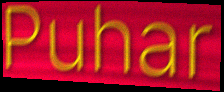
Puhar